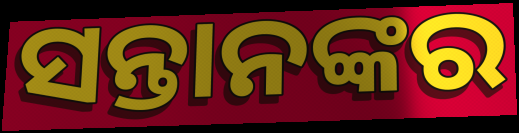
ସନ୍ତାନଙ୍କର